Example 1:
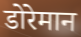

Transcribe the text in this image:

डोरेमान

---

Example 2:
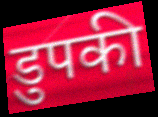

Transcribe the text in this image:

डुपकी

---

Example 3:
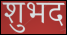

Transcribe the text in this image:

शुभद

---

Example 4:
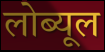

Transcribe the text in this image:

लोब्यूल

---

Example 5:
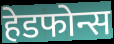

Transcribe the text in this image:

हेडफोन्स